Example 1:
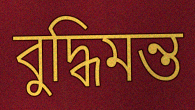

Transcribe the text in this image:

বুদ্ধিমন্ত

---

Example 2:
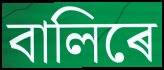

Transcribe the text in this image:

বালিৰে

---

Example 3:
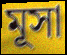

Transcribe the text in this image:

মূসা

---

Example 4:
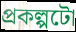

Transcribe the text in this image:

প্ৰকল্পটো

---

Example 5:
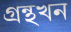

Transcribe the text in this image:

গ্ৰন্থখন